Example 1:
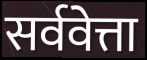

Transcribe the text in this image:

सर्ववेत्ता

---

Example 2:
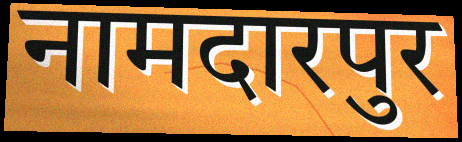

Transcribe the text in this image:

नामदारपुर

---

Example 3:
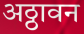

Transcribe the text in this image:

अठ्ठावन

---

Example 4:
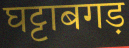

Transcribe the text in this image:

घट्टाबगड़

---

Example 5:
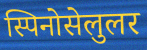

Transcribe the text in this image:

स्पिनोसेलुलर